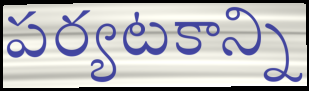
పర్యటకాన్ని